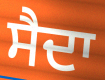
ਸੈਦਾ